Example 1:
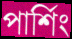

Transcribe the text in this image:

পার্শিং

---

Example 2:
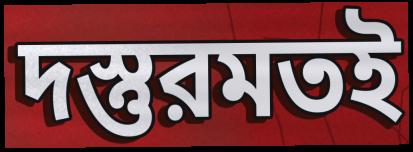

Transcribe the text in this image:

দস্তুরমতই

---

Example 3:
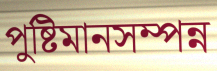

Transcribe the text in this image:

পুষ্টিমানসম্পন্ন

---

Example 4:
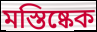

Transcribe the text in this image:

মস্তিষ্কেক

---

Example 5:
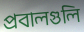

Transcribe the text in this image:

প্রবালগুলি